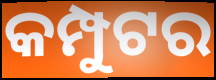
କମ୍ପୁଟର